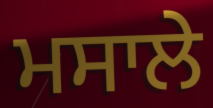
ਮਸਾਲੇ